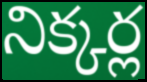
నిక్కర్ల